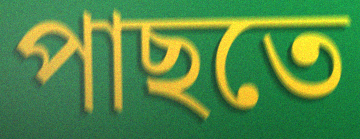
পাছতে